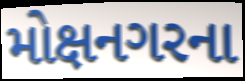
મોક્ષનગરના